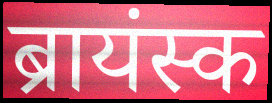
ब्रायंस्क